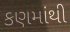
કણમાંથી